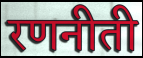
रणनीती